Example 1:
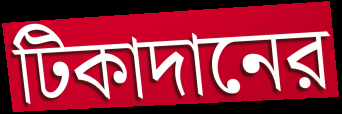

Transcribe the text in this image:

টিকাদানের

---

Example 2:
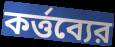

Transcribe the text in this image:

কর্ত্তব্যের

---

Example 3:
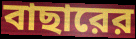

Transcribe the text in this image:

বাছারের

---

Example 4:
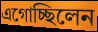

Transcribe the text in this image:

এগোচ্ছিলেন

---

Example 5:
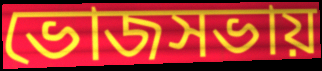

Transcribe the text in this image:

ভোজসভায়